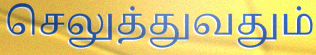
செலுத்துவதும்